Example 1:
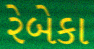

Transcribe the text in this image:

રેબેકા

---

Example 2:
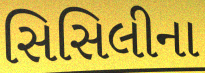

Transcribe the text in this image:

સિસિલીના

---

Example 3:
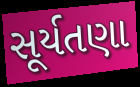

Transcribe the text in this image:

સૂર્યતણા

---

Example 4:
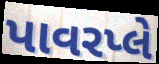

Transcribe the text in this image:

પાવરપ્લે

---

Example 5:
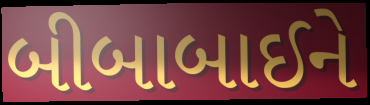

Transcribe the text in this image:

બીબાબાઈને